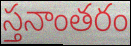
స్తనాంతరం